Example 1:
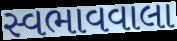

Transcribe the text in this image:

સ્વભાવવાલા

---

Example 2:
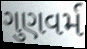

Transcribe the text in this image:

ગુણવર્મ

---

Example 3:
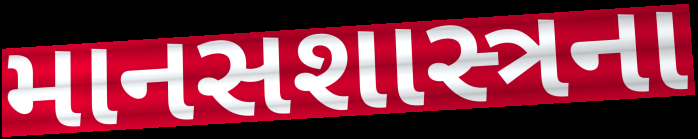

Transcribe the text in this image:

માનસશાસ્ત્રના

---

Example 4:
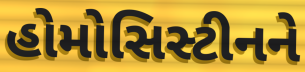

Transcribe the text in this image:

હોમોસિસ્ટીનને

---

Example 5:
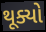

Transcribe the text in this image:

થૂક્યો